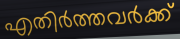
എതിർത്തവർക്ക്